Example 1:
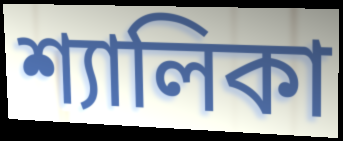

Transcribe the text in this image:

শ্যালিকা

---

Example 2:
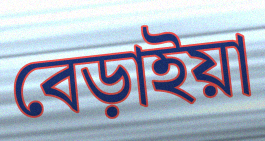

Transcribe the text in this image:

বেড়াইয়া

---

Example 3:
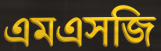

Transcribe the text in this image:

এমএসজি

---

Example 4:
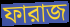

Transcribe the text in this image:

ফারাজ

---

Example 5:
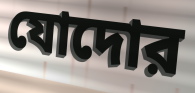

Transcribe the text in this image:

যোদোর